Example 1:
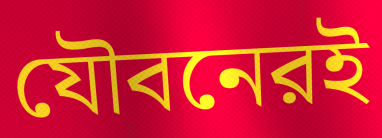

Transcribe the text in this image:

যৌবনেরই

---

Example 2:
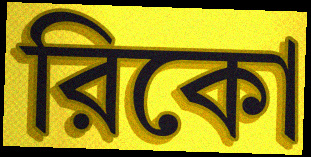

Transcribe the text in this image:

রিকো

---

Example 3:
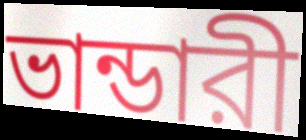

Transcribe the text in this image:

ভান্ডারী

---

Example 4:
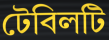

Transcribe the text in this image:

টেবিলটি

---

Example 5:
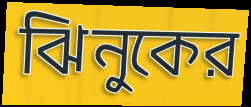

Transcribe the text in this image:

ঝিনুকের